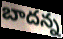
బాదన్న